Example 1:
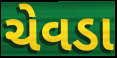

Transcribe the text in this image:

ચેવડા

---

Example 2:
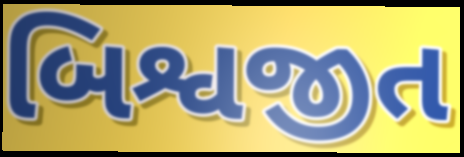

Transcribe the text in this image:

બિશ્વજીત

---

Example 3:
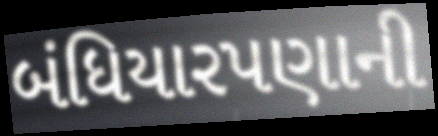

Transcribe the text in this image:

બંધિયારપણાની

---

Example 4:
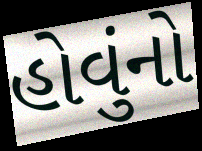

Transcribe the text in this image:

હોવુંનો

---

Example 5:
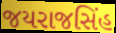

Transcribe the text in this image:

જયરાજસિંહ